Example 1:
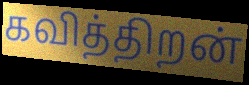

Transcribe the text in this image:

கவித்திறன்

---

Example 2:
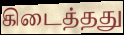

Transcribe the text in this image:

கிடைத்தது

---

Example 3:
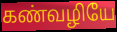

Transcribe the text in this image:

கண்வழியே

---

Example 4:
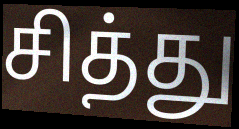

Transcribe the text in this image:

சித்து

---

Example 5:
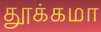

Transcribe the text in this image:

தூக்கமா